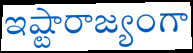
ఇష్టారాజ్యంగా